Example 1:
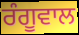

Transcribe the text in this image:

ਰੰਗੂਵਾਲ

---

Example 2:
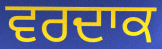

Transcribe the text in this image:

ਵਰਦਾਕ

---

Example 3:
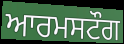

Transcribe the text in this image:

ਆਰਮਸਟੌਗ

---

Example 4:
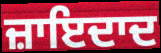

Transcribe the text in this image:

ਜ਼ਾਇਦਾਦ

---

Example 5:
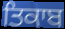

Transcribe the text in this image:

ਤਿਕਾਬ